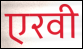
एरवी